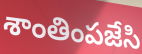
శాంతింపజేసి